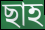
ছাহ